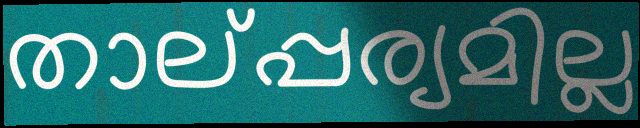
താല്പ്പര്യമില്ല